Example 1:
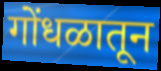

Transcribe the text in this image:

गोंधळातून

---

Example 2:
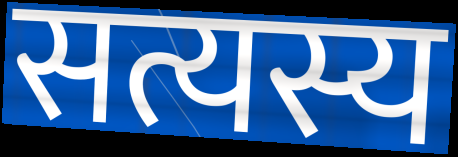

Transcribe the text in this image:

सत्यस्य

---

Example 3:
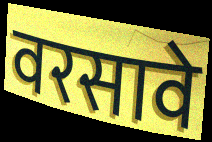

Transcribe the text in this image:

वरसावे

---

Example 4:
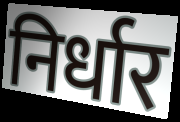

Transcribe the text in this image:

निर्धार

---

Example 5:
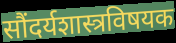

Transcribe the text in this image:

सौंदर्यशास्त्रविषयक